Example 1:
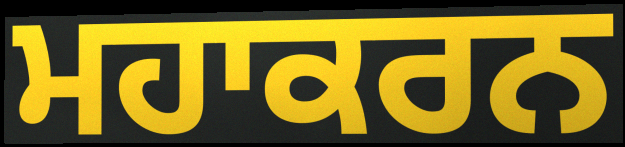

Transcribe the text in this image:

ਮਹਾਕਰਨ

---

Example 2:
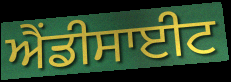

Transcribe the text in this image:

ਐਂਡੀਸਾਈਟ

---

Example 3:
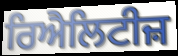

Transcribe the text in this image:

ਰਿਐਲਿਟੀਜ਼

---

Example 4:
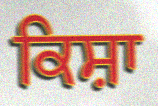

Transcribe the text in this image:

ਕਿਸ਼ਾ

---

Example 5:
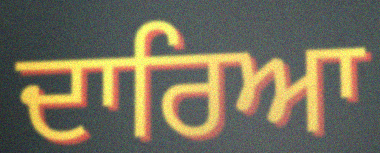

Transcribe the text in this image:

ਦਾਰਿਆ